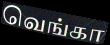
வெங்கா